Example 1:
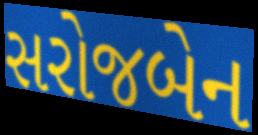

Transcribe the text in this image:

સરોજબેન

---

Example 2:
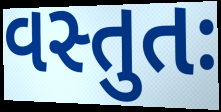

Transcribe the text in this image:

વસ્તુતઃ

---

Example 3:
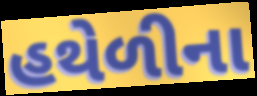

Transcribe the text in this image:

હથેળીના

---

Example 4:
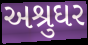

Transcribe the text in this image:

અશ્રુઘર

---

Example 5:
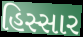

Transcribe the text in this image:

હિસ્સાર